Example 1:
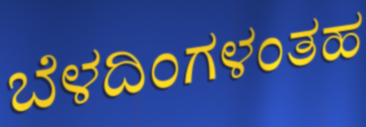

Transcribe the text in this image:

ಬೆಳದಿಂಗಳಂತಹ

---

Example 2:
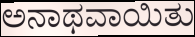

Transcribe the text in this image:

ಅನಾಥವಾಯಿತು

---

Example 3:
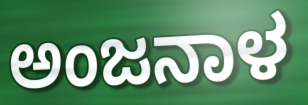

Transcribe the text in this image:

ಅಂಜನಾಳ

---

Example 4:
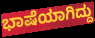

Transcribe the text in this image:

ಭಾಷೆಯಾಗಿದ್ದು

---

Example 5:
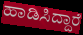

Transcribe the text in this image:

ಹಾಡಿಸಿದ್ದಾರೆ